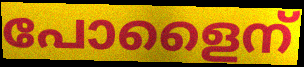
പോളൈന്